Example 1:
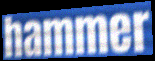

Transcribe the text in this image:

hammer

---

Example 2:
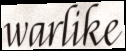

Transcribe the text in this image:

warlike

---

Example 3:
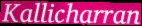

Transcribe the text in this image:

Kallicharran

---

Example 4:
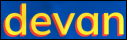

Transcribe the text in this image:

devan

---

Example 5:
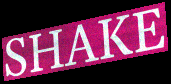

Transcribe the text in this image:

SHAKE